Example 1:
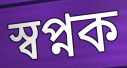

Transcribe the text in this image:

স্বপ্নক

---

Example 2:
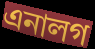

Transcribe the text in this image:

এনালগ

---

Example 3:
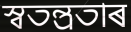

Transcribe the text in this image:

স্বতন্ত্ৰতাৰ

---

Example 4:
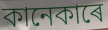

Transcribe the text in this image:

কানেকাৰে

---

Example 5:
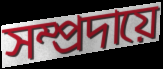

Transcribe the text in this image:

সম্প্ৰদায়ে